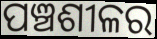
ପଞ୍ଚଶୀଳର